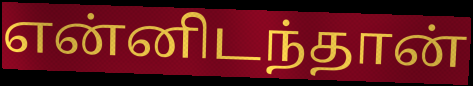
என்னிடந்தான்